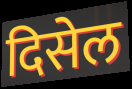
दिसेल